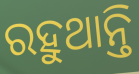
ରହୁଥାନ୍ତି